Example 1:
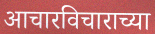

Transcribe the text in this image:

आचारविचाराच्या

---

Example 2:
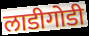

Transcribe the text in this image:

लाडीगोडी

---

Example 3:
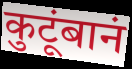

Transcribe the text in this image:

कुटूंबानं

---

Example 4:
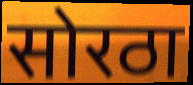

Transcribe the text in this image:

सोरठा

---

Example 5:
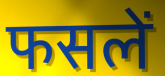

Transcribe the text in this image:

फसलें